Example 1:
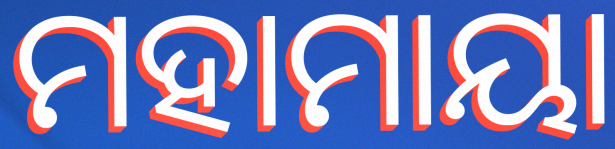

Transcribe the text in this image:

ମହାମାୟା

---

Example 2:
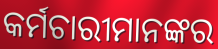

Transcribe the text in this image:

କର୍ମଚାରୀମାନଙ୍କର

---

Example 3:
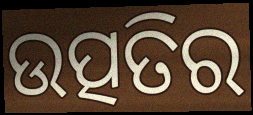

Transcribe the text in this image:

ଉତ୍ପତିର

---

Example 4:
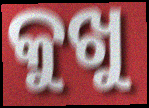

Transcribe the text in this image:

କୁଖୁ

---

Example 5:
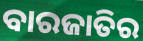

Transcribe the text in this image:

ବାରଜାତିର